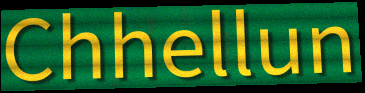
Chhellun